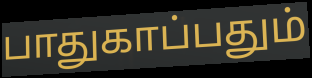
பாதுகாப்பதும்